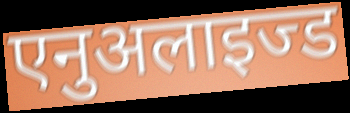
एनुअलाइज्ड